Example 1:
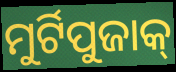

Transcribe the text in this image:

ମୁର୍ଟିପୁଜାକ୍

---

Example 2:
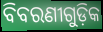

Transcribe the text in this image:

ବିବରଣୀଗୁଡ଼ିକ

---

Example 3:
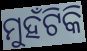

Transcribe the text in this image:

ମୁହଁଟିକି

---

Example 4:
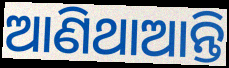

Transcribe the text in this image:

ଆଣିଥାଆନ୍ତି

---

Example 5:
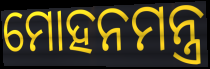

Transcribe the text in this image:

ମୋହନମନ୍ତ୍ର